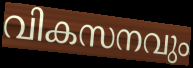
വികസനവും